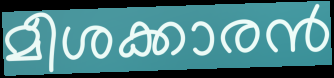
മീശക്കാരൻ